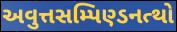
અવુત્તસમ્પિણ્ડનત્થો